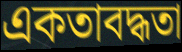
একতাবদ্ধতা